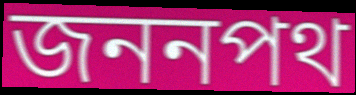
জননপথ